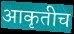
आकृतीच